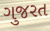
ગુજરત